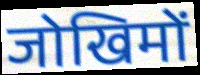
जोखिमों